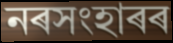
নৰসংহাৰৰ